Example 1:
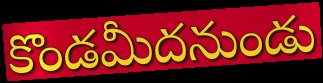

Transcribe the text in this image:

కొండమీదనుండు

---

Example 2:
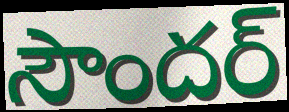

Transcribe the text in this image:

సౌందర్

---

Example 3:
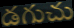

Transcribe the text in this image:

డగుచు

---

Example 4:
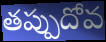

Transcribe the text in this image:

తప్పుదోవ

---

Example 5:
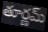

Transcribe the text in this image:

తూర్ణమ్